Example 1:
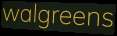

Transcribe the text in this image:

walgreens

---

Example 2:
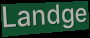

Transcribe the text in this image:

Landge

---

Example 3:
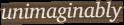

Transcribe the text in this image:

unimaginably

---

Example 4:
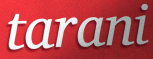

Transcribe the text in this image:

tarani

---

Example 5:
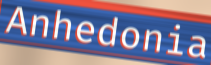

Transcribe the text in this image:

Anhedonia